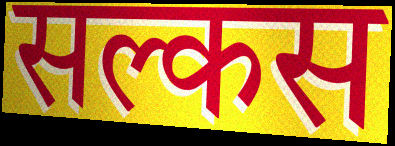
सल्कस